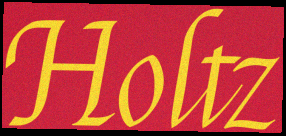
Holtz